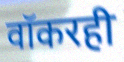
वॉकरही